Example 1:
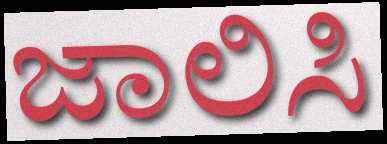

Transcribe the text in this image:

ಜಾಲಿಸಿ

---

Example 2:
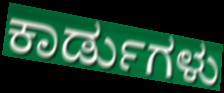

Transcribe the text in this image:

ಕಾರ್ಡುಗಳು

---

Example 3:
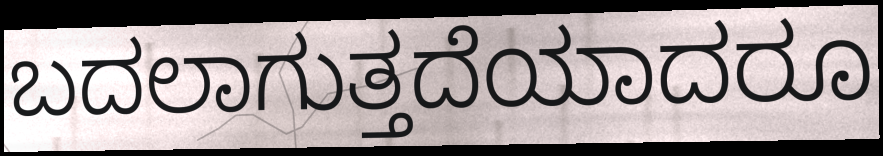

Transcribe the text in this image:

ಬದಲಾಗುತ್ತದೆಯಾದರೂ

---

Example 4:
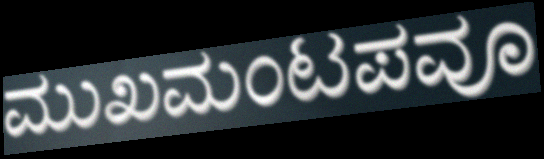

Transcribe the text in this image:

ಮುಖಮಂಟಪವೂ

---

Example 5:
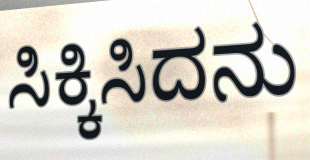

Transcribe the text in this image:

ಸಿಕ್ಕಿಸಿದನು